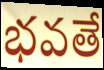
భవతే